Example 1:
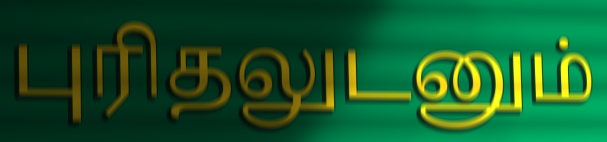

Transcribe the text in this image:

புரிதலுடனும்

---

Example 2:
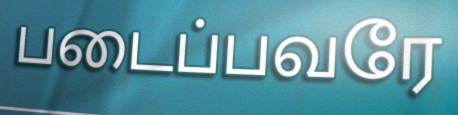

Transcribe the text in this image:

படைப்பவரே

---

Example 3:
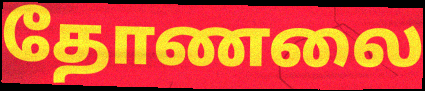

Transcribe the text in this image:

தோணலை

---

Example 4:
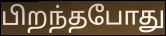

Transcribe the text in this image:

பிறந்தபோது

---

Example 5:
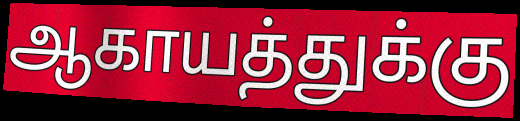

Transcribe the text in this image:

ஆகாயத்துக்கு